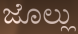
ಜೊಲ್ಲು